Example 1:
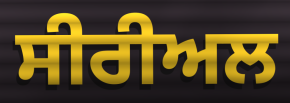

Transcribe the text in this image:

ਸੀਰੀਅਲ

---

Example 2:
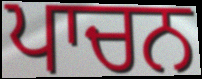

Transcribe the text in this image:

ਪਾਚਨ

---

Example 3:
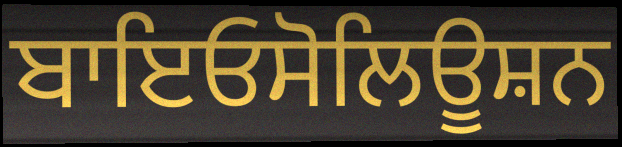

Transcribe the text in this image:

ਬਾਇਓਸੋਲਿਊਸ਼ਨ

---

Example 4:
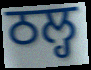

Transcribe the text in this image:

ਠਲ੍ਹ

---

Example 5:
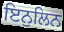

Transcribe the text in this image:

ਇਨੁਲਿਨ